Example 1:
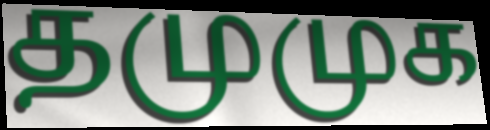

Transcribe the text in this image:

தமுமுக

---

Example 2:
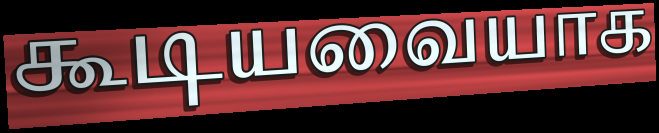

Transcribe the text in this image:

கூடியவையாக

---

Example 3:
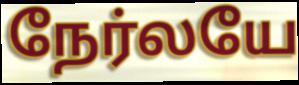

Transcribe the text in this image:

நேர்லயே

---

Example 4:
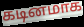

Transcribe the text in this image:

கடினமாக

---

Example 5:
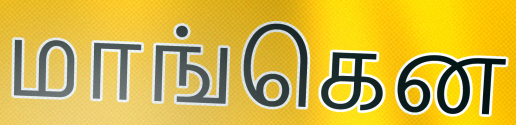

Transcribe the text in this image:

மாங்கென